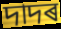
দাদৰ